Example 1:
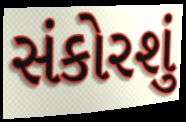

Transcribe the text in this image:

સંકોરશું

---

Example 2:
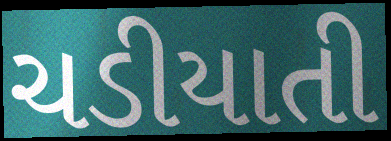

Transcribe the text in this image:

ચડીયાતી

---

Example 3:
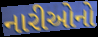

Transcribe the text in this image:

નારીઓનો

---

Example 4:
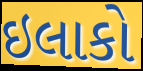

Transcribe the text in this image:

ઇલાકો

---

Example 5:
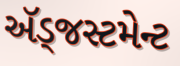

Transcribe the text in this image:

ઍડ્જસ્ટમેન્ટ